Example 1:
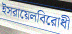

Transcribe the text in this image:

ইসরায়েলবিরোধী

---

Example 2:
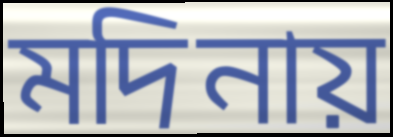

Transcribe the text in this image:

মদিনায়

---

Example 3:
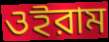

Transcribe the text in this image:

ওইরাম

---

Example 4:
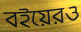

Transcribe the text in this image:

বইয়েরও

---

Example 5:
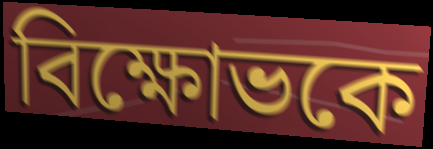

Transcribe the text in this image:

বিক্ষোভকে